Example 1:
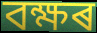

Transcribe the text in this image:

বক্ষৰ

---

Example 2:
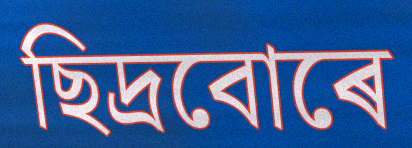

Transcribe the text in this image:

ছিদ্ৰবোৰে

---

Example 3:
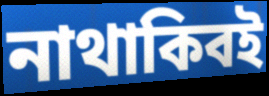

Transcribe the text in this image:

নাথাকিবই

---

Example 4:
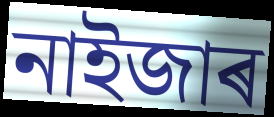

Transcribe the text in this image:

নাইজাৰ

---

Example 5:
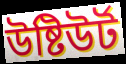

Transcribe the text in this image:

উষ্টিউৰ্ট